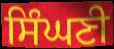
ਸਿੰਘਣੀ